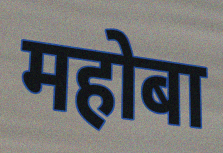
महोबा